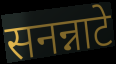
सनन्नाटे